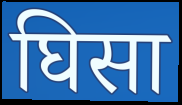
घिसा